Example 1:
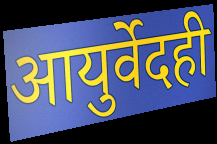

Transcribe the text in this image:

आयुर्वेदही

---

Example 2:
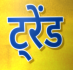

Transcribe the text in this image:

ट्रेंड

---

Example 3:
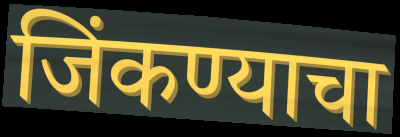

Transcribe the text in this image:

जिंकण्याचा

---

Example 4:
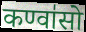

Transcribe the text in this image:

कण्वा॑सो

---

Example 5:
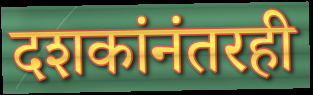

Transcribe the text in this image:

दशकांनंतरही